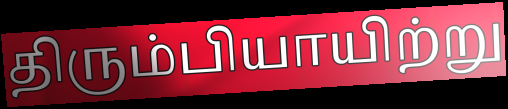
திரும்பியாயிற்று